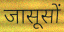
जासूसों